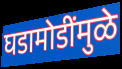
घडामोडींमुळे